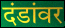
दंडांवर